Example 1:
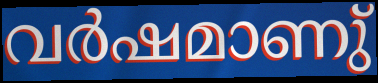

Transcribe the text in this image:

വർഷമാണു്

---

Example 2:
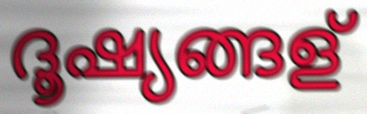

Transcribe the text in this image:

ദൂഷ്യങ്ങള്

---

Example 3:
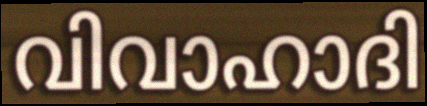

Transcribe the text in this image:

വിവാഹാദി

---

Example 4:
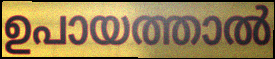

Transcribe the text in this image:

ഉപായത്താൽ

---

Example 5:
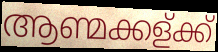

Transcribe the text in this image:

ആണ്മക്കള്ക്ക്